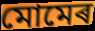
মোমেৰ